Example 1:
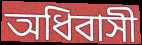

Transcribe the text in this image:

অধিবাসী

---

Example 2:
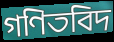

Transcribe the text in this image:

গণিতবিদ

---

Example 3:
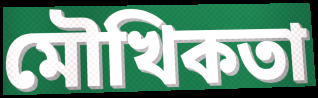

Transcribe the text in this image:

মৌখিকতা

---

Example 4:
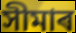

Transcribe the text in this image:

সীমাৰ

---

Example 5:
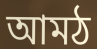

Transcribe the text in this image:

আমঠ